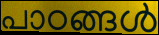
പാഠങ്ങൾ